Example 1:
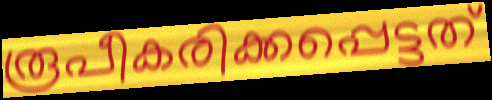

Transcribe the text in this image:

രൂപീകരിക്കപ്പെട്ടത്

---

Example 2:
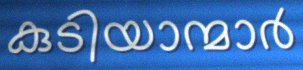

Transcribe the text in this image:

കുടിയാന്മാർ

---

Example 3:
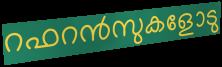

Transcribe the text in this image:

റഫറൻസുകളോടു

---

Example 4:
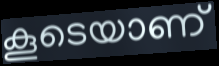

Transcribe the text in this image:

കൂടെയാണ്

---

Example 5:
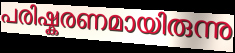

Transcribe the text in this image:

പരിഷ്കരണമായിരുന്നു